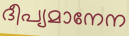
ദീപ്യമാനേന